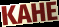
KAHE